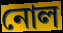
নোল